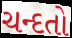
ચન્દતો